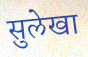
सुलेखा